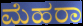
ಮೆಹರಾ